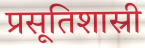
प्रसूतिशास्री